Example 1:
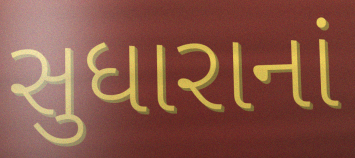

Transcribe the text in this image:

સુધારાનાં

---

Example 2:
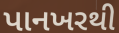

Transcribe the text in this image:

પાનખરથી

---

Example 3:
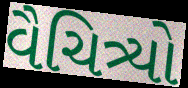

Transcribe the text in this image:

વૈચિત્ર્યો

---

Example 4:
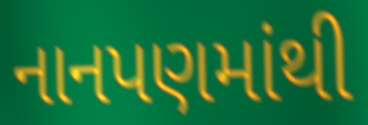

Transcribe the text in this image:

નાનપણમાંથી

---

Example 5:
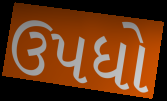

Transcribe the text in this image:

ઉપધો